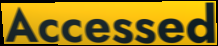
Accessed